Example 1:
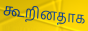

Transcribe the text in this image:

கூறினதாக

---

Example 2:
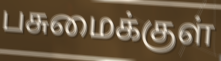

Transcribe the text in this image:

பசுமைக்குள்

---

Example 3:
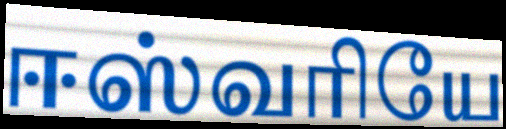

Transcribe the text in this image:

ஈஸ்வரியே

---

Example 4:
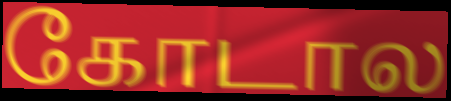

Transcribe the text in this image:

கோடால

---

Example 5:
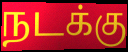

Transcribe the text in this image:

நடக்கு